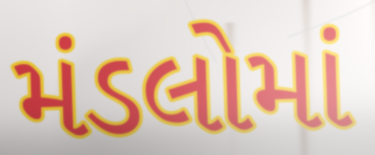
મંડલોમાં